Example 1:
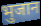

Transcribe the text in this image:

भुजान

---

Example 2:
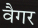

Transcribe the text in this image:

वैगर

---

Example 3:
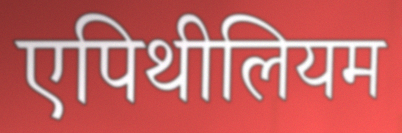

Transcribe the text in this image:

एपिथीलियम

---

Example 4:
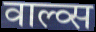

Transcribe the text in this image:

वाल्व्स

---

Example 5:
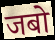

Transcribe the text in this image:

जबो